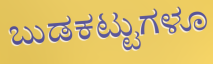
ಬುಡಕಟ್ಟುಗಳೂ